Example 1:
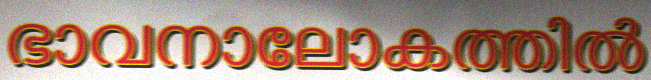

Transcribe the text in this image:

ഭാവനാലോകത്തിൽ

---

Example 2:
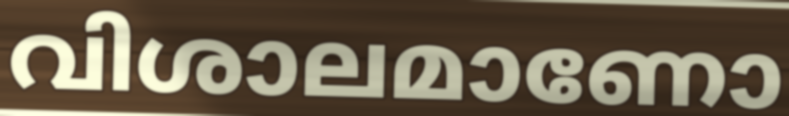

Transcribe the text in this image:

വിശാലമാണോ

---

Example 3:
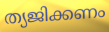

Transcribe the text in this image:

ത്യജിക്കണം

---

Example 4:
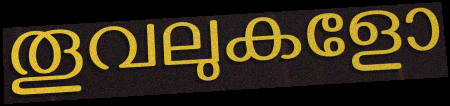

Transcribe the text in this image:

തൂവലുകളോ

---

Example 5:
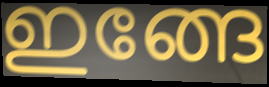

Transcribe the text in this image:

ഇങ്ങേ